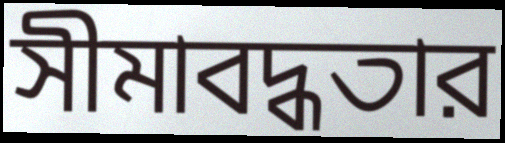
সীমাবদ্ধতার